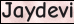
Jaydevi